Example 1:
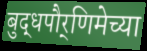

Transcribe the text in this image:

बुद्धपौर्णिमेच्या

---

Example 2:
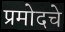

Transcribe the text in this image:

प्रमोदचे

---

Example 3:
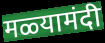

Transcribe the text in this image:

मळ्यामंदी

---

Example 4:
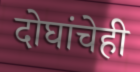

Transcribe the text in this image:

दोघांचेही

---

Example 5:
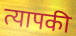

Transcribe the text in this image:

त्यापकी